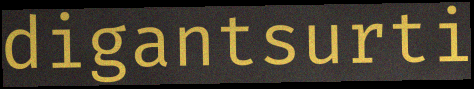
digantsurti